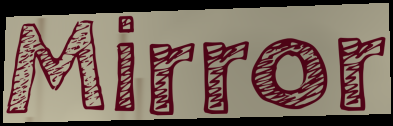
Mirror